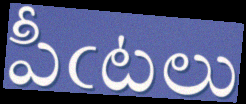
పీఁటలు